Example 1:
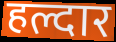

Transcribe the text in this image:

हल्दार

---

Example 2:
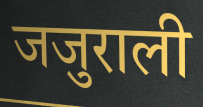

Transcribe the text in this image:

जजुराली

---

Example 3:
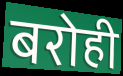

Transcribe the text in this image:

बरोही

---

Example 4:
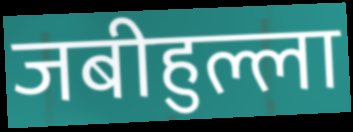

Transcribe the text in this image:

जबीहुल्ला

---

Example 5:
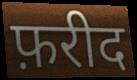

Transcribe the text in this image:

फ़रीद